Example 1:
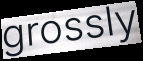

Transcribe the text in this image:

grossly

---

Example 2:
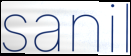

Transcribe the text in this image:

sanil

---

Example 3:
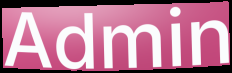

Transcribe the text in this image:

Admin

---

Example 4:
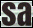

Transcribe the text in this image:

sa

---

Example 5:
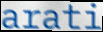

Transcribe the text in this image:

arati